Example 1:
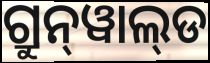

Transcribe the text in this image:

ଗ୍ରୁନ୍‌ୱାଲ୍‌ଡ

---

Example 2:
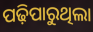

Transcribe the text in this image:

ପଢ଼ିପାରୁଥିଲା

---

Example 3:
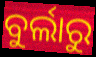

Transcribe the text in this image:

ବୁର୍ଲାରୁ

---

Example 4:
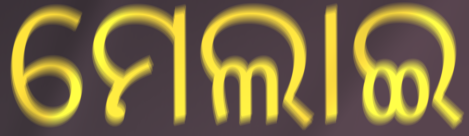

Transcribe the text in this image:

ମେଲାଇ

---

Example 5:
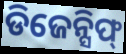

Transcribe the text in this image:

ଡିଜେନ୍ସିଫ୍